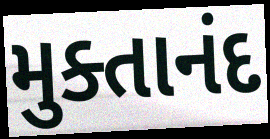
મુક્તાનંદ